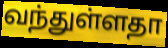
வந்துள்ளதா